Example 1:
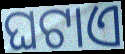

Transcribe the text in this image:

ଘଟାଏ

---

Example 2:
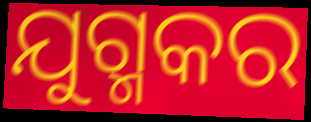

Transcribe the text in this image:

ଯୁଗ୍ମକର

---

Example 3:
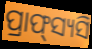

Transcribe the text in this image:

ପ୍ରାଫ୍‌ସ୍ୟସି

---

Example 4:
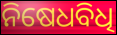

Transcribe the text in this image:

ନିଷେଧବିଧି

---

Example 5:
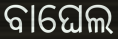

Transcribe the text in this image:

ବାଘେଲ